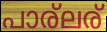
പാര്ലര്